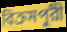
বিক্রমপুরী